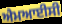
ਐਮਆਈਸੀ